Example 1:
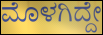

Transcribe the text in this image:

ಮೊಳಗಿದ್ದೇ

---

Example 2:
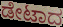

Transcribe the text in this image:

ಡೇಟಾದ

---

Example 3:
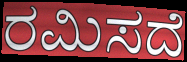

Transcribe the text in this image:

ರಮಿಸದೆ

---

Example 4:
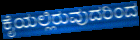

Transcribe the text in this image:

ಕೈಯಲ್ಲಿರುವುದರಿಂದ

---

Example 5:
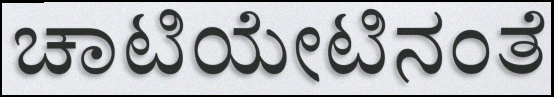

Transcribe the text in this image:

ಚಾಟಿಯೇಟಿನಂತೆ